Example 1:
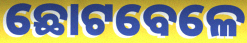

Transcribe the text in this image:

ଛୋଟବେଳେ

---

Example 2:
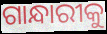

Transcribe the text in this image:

ଗାନ୍ଧାରୀକୁ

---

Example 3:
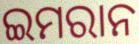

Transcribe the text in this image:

ଇମରାନ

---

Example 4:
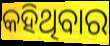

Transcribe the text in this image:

କହିଥିବାର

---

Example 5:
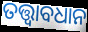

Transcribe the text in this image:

ତତ୍ତ୍ବାବଧାନ